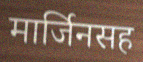
मार्जिनसह